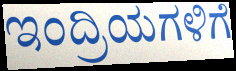
ಇಂದ್ರಿಯಗಳಿಗೆ